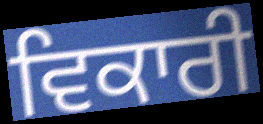
ਵਿਕਾਰੀ